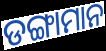
ଡଙ୍ଗାମାନ